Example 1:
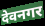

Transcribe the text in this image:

देवनगर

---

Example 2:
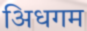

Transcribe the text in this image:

अिधगम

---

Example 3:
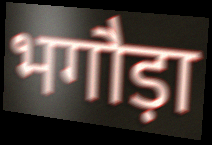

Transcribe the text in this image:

भगौड़ा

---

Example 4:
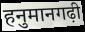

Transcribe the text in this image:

हनुमानगढ़ी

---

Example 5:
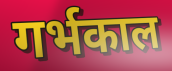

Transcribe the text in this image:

गर्भकाल